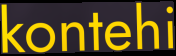
kontehi